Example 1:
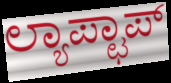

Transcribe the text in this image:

ಲ್ಯಾಪ್ಟಾಪ್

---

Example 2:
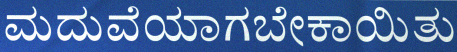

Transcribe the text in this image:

ಮದುವೆಯಾಗಬೇಕಾಯಿತು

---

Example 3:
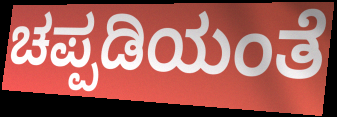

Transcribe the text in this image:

ಚಪ್ಪಡಿಯಂತೆ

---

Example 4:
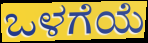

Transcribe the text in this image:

ಒಳಗೆಯೆ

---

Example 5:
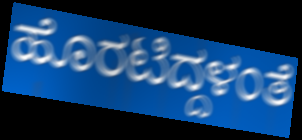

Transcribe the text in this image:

ಹೊರಟಿದ್ದಳಂತೆ